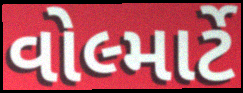
વોલ્માર્ટે